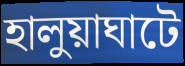
হালুয়াঘাটে